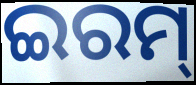
ଇରମ୍